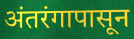
अंतरंगापासून